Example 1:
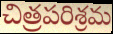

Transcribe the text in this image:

చిత్రపరిశ్రమ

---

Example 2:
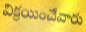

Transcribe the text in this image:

విక్రయించేవారు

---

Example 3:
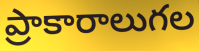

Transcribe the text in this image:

ప్రాకారాలుగల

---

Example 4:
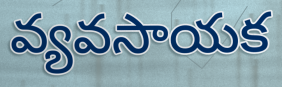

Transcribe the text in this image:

వ్యవసాయక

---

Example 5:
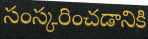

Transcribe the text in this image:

సంస్కరించడానికి